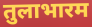
तुलाभारम